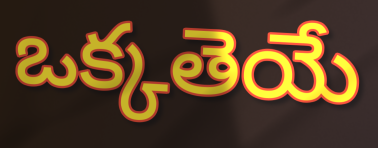
ఒక్కతెయే